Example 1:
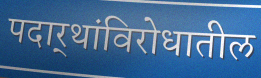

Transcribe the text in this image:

पदार्थांविरोधातील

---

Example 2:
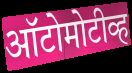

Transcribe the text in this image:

ऑटोमोटीव्ह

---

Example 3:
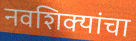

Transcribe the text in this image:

नवशिक्यांचा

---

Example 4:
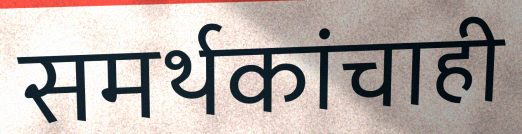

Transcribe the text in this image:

समर्थकांचाही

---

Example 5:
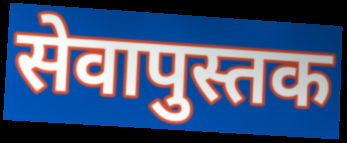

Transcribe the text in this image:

सेवापुस्तक